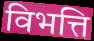
विभत्ति